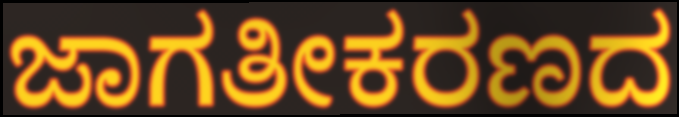
ಜಾಗತೀಕರಣದ